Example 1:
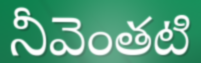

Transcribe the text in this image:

నీవెంతటి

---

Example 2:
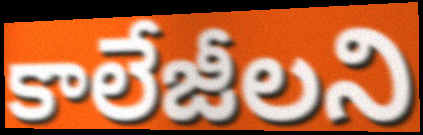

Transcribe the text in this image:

కాలేజీలని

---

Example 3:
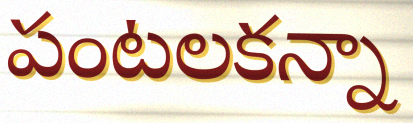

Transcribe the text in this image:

పంటలకన్నా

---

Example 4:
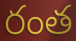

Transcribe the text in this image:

రంత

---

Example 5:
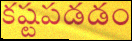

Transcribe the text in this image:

కష్టపడడం